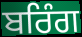
ਬਰਿੰਗ